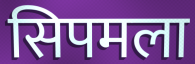
सिपमला